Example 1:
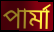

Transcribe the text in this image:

পার্মা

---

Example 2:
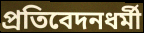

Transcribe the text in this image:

প্রতিবেদনধর্মী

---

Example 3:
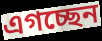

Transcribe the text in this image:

এগচ্ছেন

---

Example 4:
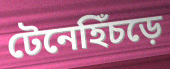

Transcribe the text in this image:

টেনেহিঁচড়ে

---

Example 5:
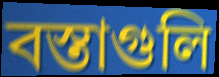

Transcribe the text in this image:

বস্তাগুলি